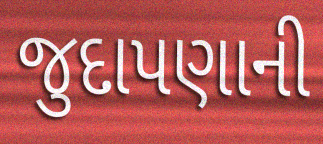
જુદાપણાની